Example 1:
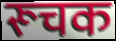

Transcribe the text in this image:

रूचक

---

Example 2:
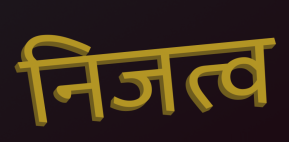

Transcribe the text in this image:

निजत्व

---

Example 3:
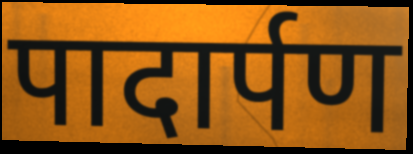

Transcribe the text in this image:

पादार्पण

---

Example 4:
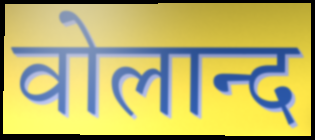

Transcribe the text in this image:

वोलान्द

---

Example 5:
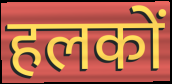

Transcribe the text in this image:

हलकों